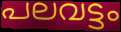
പലവട്ടം